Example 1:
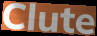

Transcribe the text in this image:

Clute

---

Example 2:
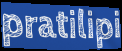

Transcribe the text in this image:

pratilipi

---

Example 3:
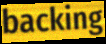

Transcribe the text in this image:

backing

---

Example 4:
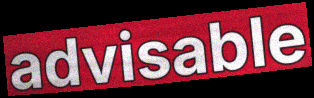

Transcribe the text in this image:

advisable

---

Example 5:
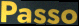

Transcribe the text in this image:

Passo